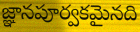
జ్ఞానపూర్వకమైనది